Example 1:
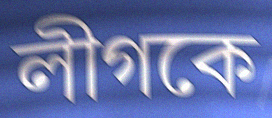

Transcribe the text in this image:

লীগকে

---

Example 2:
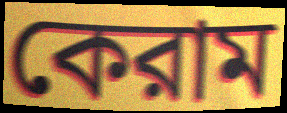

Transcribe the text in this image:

কেরাম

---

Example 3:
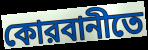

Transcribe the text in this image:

কোরবানীতে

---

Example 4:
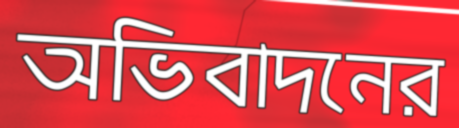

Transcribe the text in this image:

অভিবাদনের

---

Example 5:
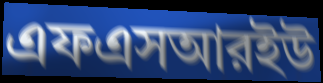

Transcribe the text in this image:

এফএসআরইউ